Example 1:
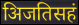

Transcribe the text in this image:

अिजतिसहं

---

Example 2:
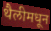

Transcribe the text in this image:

थैलीमधून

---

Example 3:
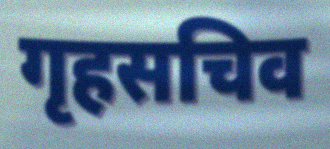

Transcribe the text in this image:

गृहसचिव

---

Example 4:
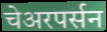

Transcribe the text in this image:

चेअरपर्सन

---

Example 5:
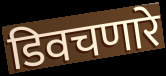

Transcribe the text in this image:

डिवचणारे